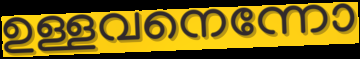
ഉള്ളവനെന്നോ